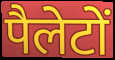
पैलेटों